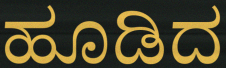
ಹೂಡಿದ